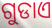
ଗୁଡାଏ